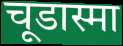
चूडास्मा